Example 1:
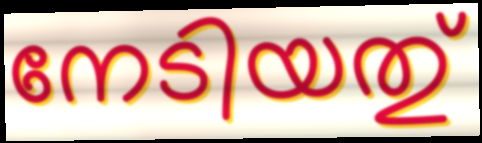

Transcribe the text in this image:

നേടിയതു്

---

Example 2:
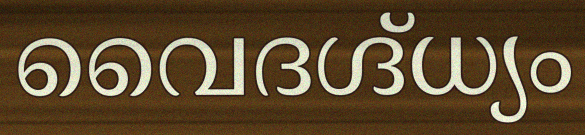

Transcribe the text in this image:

വൈദഗ്ദ്ധ്യം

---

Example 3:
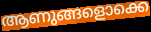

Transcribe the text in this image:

ആണുങ്ങളൊക്കെ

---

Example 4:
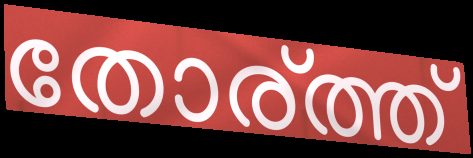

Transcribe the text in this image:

തോര്ത്ത്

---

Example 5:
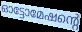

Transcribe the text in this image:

ഓട്ടോമേഷന്റെ